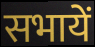
सभायें